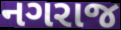
નગરાજ